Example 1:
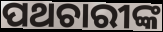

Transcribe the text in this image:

ପଥଚାରୀଙ୍କ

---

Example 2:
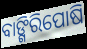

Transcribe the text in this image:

ବାଙ୍ଗିରିପୋଷି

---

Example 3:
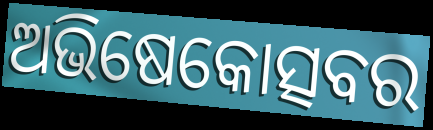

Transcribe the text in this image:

ଅଭିଷେକୋତ୍ସବର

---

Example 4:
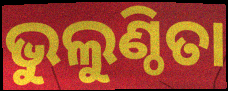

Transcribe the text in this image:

ଭୁଲୁଣ୍ଠିତା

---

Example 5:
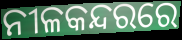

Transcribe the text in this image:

ନୀଳକନ୍ଦରରେ